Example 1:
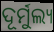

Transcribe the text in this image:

ଦୂର୍ମୁଲ୍ୟ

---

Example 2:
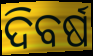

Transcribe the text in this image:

ଦିବର୍ଷ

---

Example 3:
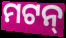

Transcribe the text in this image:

ମଟନ୍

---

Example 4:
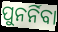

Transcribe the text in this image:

ପୁନର୍ନିବା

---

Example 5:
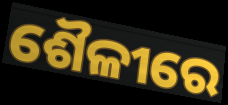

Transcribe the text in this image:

ଶୈଳୀରେ